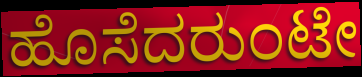
ಹೊಸೆದರುಂಟೇ